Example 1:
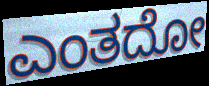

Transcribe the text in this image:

ಎಂತದೋ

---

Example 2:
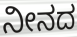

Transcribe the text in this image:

ನೀನದ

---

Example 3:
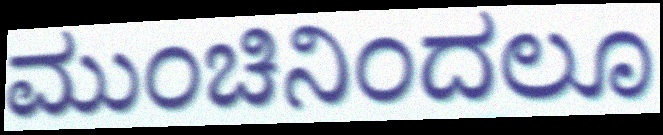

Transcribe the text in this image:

ಮುಂಚಿನಿಂದಲೂ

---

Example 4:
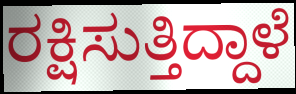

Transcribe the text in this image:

ರಕ್ಷಿಸುತ್ತಿದ್ದಾಳೆ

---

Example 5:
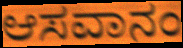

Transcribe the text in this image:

ಆಸವಾನಂ